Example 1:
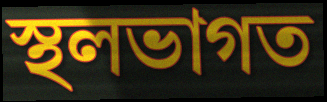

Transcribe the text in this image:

স্থলভাগত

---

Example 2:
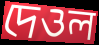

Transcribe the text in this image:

দেওল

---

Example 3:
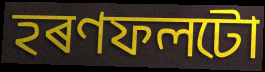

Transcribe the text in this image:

হৰণফলটো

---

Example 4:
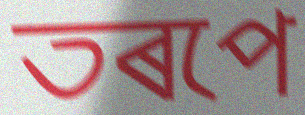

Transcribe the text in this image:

তৰপে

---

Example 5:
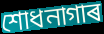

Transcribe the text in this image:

শোধনাগাৰ